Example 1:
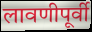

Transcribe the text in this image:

लावणीपूर्वी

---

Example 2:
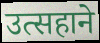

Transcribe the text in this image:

उत्सहाने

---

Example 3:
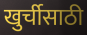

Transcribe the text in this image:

खुर्चीसाठी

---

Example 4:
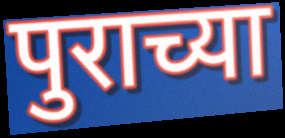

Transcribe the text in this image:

पुराच्या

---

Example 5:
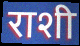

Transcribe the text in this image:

राशी